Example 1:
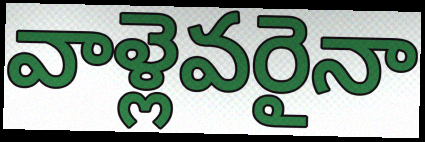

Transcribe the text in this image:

వాళ్లెవరైనా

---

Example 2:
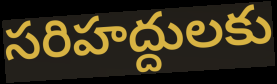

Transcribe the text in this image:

సరిహద్దులకు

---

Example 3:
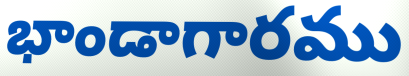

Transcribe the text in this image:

భాండాగారము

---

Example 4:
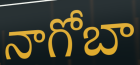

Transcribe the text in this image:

నాగోబా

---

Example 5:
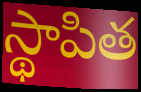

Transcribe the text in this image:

స్థాపిత